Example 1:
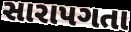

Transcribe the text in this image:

સારાપગતા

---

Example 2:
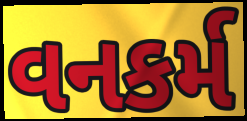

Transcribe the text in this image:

વનકર્મ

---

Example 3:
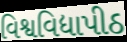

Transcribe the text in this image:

વિશ્વવિદ્યાપીઠ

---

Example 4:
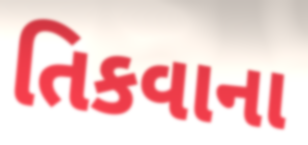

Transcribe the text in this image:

તિકવાના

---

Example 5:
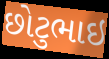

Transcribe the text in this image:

છોટુભાઇ